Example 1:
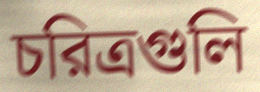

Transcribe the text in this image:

চরিত্রগুলি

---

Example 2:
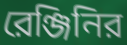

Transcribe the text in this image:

রেঞ্জিনির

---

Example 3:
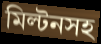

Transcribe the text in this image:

মিল্টনসহ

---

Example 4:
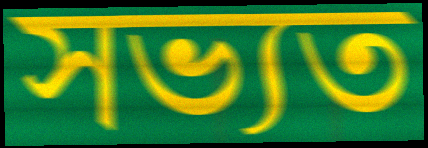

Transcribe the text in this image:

সভ্যত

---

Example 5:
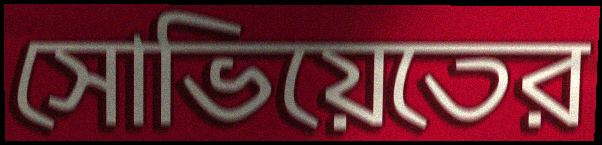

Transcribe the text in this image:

সোভিয়েতের